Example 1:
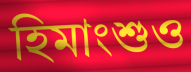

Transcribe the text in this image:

হিমাংশুও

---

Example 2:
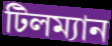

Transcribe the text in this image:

টিলম্যান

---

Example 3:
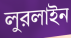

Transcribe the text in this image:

লুরলাইন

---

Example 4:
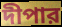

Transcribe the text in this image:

দীপার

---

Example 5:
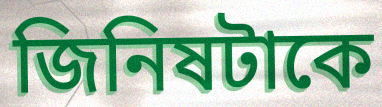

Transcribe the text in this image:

জিনিষটাকে